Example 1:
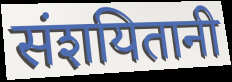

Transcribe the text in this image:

संशयितानी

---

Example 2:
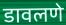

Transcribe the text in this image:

डावलणे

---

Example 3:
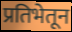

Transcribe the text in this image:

प्रतिभेतून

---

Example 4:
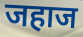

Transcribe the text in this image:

जहाज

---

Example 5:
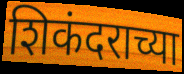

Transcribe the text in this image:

शिकंदराच्या